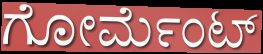
ಗೋರ್ಮೆಂಟ್